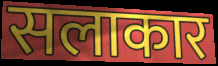
सलाकार